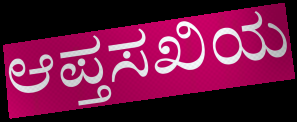
ಆಪ್ತಸಖಿಯ